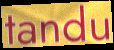
tandu